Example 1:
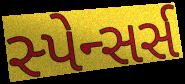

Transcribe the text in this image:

સ્પેન્સર્સ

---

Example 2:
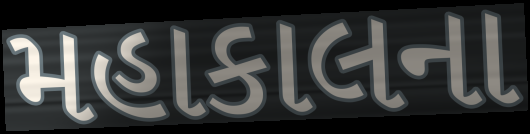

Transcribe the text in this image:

મહાકાલના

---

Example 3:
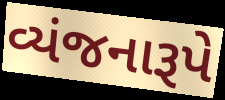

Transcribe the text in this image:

વ્યંજનારૂપે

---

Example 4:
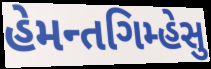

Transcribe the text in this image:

હેમન્તગિમ્હેસુ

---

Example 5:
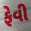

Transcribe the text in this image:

ફેવી